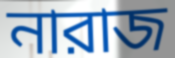
নারাজ